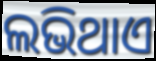
ଲଭିଥାଏ